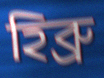
হিব্ৰু